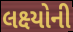
લક્ષ્યોની